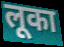
लूका